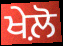
ਖੇਲ਼ੋ